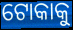
ଟୋକାକୁ